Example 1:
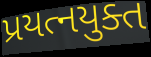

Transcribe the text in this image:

પ્રયત્નયુક્ત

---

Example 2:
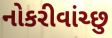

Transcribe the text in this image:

નોકરીવાંચ્છુ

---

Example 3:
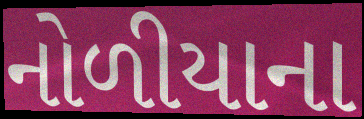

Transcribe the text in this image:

નોળીયાના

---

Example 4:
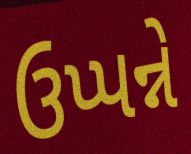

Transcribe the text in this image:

ઉપ્પન્ને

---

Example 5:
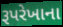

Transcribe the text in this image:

રૂપરેખાના